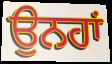
ਉਨਹਾਂ